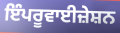
ਇੰਪਰੂਵਾਈਜ਼ੇਸ਼ਨ